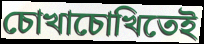
চোখাচোখিতেই